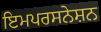
ਇਮਪਰਸਨੇਸ਼ਨ